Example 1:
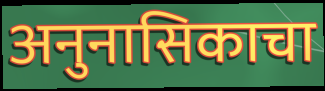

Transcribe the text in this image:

अनुनासिकाचा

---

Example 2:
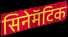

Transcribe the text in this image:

सिनेमॅटिक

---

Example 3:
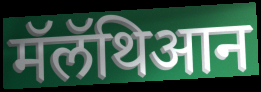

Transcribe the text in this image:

मॅलॅथिआन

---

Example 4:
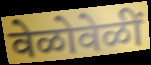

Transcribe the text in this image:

वेळोवेळीं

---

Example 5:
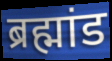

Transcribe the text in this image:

ब्रह्मांड